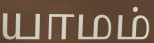
யாமம்